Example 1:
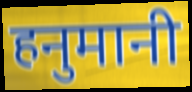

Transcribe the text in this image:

हनुमानी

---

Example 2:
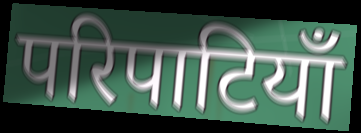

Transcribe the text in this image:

परिपाटियाँ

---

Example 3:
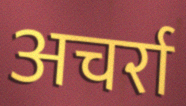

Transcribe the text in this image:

अचर्रा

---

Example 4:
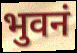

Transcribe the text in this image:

भुवनं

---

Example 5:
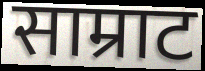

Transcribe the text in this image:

साम्राट